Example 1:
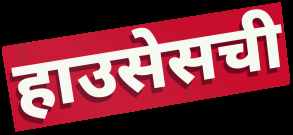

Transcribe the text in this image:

हाउसेसची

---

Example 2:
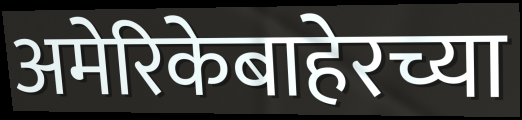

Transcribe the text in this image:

अमेरिकेबाहेरच्या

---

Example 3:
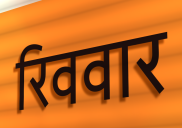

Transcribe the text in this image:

रिववार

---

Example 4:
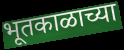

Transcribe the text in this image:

भूतकाळाच्या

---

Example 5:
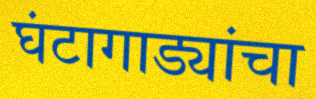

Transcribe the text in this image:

घंटागाड्यांचा